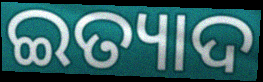
ଇତ୍ୟାଦ